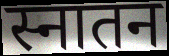
स्नातन